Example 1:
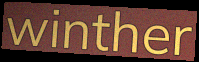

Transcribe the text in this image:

winther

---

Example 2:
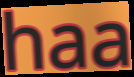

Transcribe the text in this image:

haa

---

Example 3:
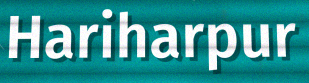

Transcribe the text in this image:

Hariharpur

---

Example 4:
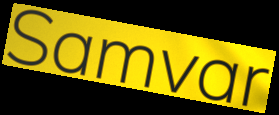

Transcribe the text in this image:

Samvar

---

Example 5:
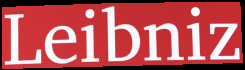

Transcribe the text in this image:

Leibniz